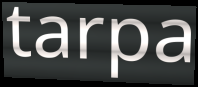
tarpa